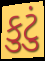
કુટું